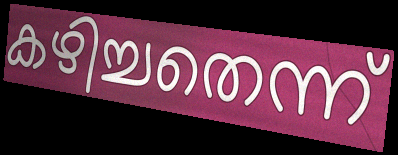
കഴിച്ചതെന്ന്